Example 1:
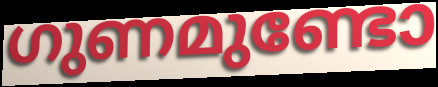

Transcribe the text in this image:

ഗുണമുണ്ടോ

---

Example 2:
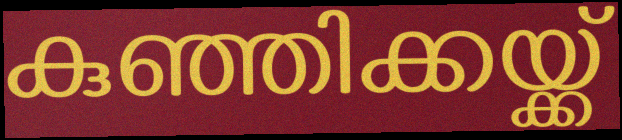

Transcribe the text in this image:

കുഞ്ഞിക്കയ്ക്ക്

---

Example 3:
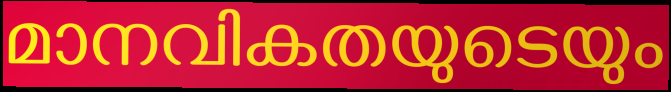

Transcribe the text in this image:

മാനവികതയുടെയും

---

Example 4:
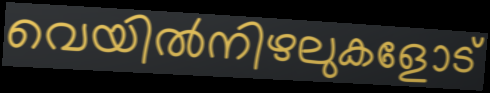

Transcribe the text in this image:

വെയിൽനിഴലുകളോട്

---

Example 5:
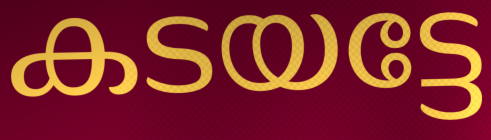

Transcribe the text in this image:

കടയട്ടേ